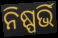
ନିଷ୍ପର୍ଭି